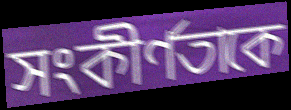
সংকীর্ণতাকে